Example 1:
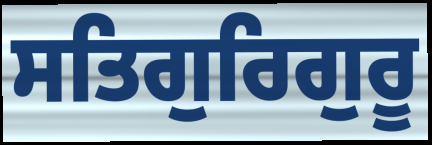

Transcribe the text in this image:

ਸਤਿਗੁਰਿਗੁਰੂ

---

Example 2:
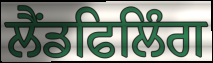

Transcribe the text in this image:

ਲੈਂਡਫਿਲਿੰਗ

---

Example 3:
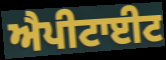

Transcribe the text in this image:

ਐਪੀਟਾਈਟ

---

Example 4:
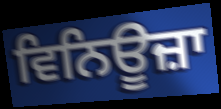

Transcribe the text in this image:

ਵਿਨਿਊਜ਼ਾ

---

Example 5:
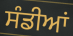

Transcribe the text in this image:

ਸੰਡੀਆਂ